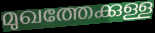
മുഖത്തേക്കുള്ള